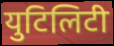
युटिलिटी